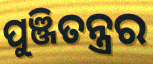
ପୁଞ୍ଜିତନ୍ତ୍ରର